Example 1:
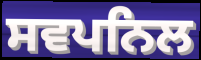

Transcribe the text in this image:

ਸਵਪਨਿਲ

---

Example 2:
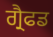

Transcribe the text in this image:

ਗ੍ਰੈਫਡ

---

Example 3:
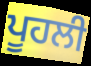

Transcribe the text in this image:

ਪੂਹਲੀ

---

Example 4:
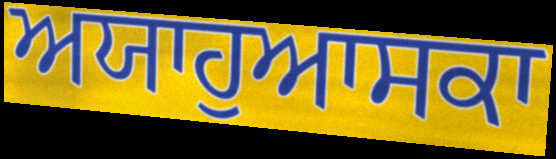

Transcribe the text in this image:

ਅਯਾਹੁਆਸਕਾ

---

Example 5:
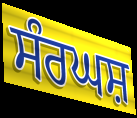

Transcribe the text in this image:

ਸੰਰਘਸ਼